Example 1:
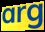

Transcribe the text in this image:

arg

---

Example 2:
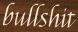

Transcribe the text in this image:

bullshit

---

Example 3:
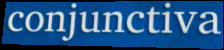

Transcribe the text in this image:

conjunctiva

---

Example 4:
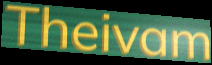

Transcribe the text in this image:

Theivam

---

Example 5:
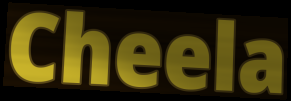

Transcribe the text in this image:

Cheela